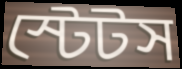
স্টেটস